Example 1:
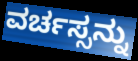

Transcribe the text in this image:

ವರ್ಚಸ್ಸನ್ನು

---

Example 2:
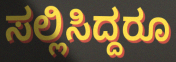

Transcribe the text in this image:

ಸಲ್ಲಿಸಿದ್ದರೂ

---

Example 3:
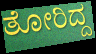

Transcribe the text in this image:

ತೋರಿದ್ದ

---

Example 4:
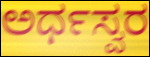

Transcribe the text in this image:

ಅರ್ಧಸ್ವರ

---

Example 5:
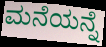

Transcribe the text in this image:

ಮನೆಯನ್ನೆ